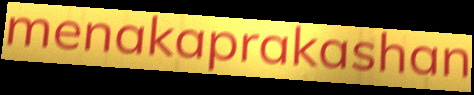
menakaprakashan